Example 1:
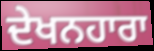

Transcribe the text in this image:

ਦੇਖਨਹਾਰਾ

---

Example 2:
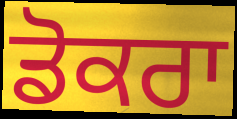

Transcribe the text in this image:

ਡੋਕਰਾ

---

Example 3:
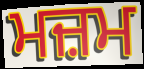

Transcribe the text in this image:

ਮਜ਼ਮ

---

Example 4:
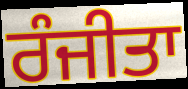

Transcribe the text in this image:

ਰੰਜੀਤਾ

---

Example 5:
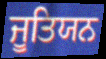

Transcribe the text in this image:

ਜੂਤਿਯਨ